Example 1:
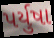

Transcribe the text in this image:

પર્યુષા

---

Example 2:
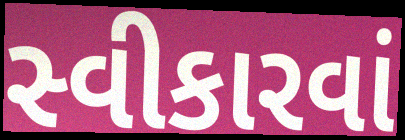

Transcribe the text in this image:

સ્વીકારવાં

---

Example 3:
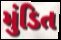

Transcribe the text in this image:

મુંડિત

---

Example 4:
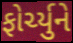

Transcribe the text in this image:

ફોર્ચ્યુને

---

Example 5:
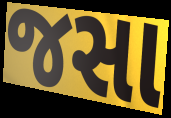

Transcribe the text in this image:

જસા